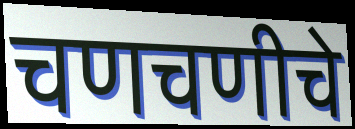
चणचणीचे